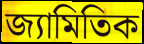
জ্যামিতিক